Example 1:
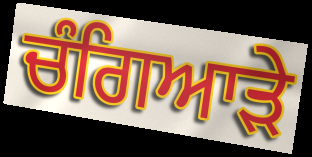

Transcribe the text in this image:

ਚੰਗਿਆੜੇ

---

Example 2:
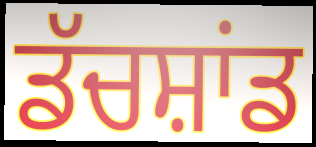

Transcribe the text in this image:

ਡੱਚਸ਼ਾਂਡ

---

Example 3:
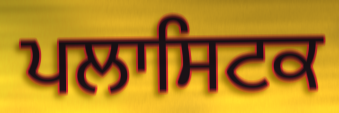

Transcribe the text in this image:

ਪਲਾਸਿਟਕ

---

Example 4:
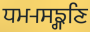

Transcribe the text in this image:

ਧਮ੍ਮਸਙ੍ਗਣਿ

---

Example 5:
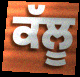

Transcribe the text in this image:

ਕੱਲੂ